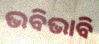
ଭବିଭାବି